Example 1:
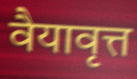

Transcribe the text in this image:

वैयावृत्त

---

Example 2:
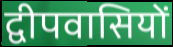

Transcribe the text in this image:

द्वीपवासियों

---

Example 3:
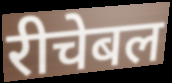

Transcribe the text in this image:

रीचेबल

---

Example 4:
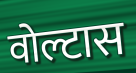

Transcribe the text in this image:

वोल्टास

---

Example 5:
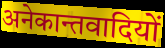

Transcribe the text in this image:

अनेकान्तवादियों